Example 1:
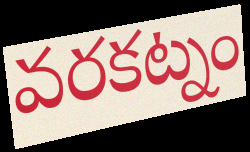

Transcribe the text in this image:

వరకట్నం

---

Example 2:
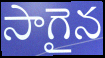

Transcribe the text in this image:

సాగైన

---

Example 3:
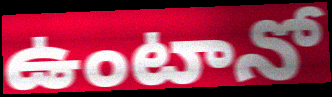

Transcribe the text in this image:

ఉంటానో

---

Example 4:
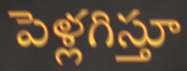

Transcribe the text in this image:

పెళ్లగిస్తూ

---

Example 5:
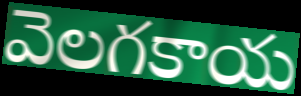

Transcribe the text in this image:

వెలగకాయ